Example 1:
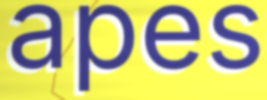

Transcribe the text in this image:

apes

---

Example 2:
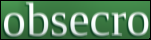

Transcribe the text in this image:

obsecro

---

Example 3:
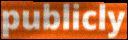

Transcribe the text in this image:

publicly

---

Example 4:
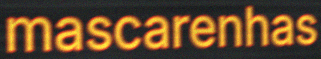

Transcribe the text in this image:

mascarenhas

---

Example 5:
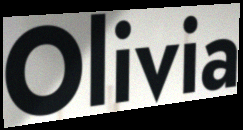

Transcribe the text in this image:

Olivia